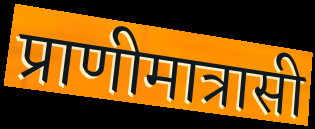
प्राणीमात्रासी